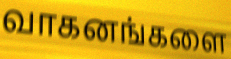
வாகனங்களை